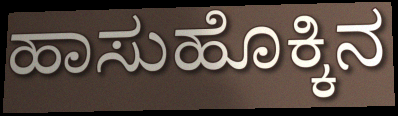
ಹಾಸುಹೊಕ್ಕಿನ